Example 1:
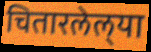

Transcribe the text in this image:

चितारलेल्या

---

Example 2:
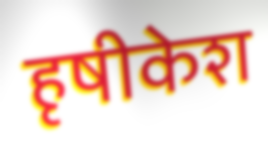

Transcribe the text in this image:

हृषीकेश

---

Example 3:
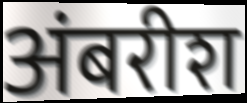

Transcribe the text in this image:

अंबरीश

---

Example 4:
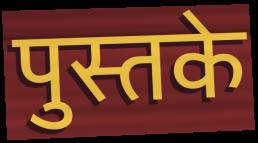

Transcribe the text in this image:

पुस्तके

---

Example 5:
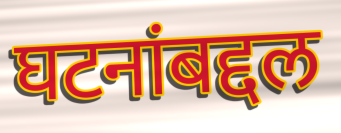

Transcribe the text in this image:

घटनांबद्दल